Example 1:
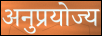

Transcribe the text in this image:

अनुप्रयोज्य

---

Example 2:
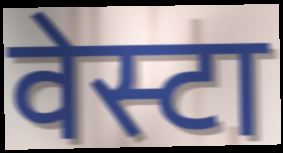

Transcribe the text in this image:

वेस्टा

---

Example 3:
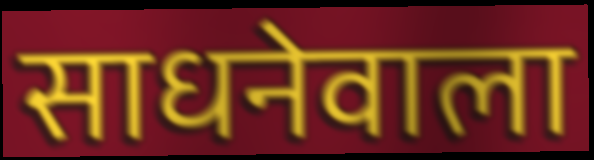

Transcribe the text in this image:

साधनेवाला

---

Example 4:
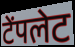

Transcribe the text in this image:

टेंपलेट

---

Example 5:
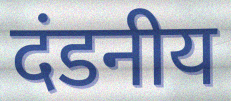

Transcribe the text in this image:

दंडनीय